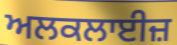
ਅਲਕਲਾਈਜ਼